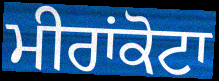
ਮੀਰਾਂਕੋਟਾ